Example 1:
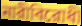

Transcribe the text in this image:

নারীবিরোধী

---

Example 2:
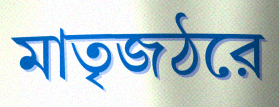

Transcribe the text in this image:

মাতৃজঠরে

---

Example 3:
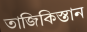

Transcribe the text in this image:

তাজিকিস্তান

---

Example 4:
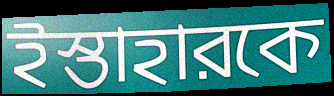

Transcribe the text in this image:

ইস্তাহারকে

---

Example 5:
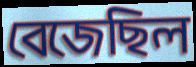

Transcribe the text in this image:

বেজেছিল